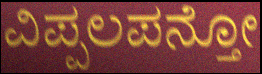
ವಿಪ್ಪಲಪನ್ತೋ